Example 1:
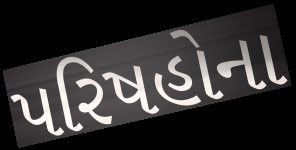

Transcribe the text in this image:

પરિષહોના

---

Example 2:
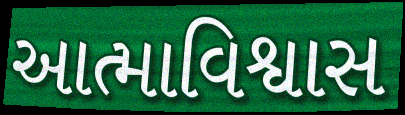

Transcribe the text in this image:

આત્માવિશ્વાસ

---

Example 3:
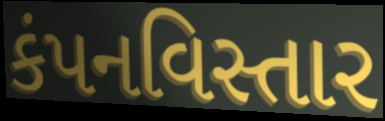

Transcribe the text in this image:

કંપનવિસ્તાર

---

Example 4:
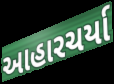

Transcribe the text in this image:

આહારચર્યા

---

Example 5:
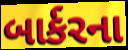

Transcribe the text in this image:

બાર્કરના